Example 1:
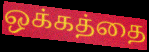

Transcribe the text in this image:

ஒக்கத்தை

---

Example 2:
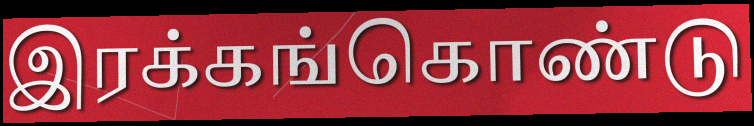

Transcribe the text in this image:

இரக்கங்கொண்டு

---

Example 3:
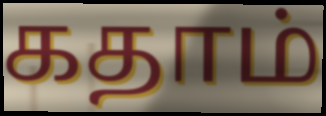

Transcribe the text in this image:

கதாம்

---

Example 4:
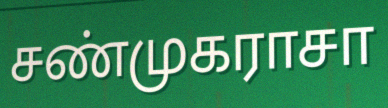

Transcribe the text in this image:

சண்முகராசா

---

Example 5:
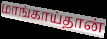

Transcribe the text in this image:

மாங்காய்தான்